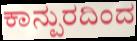
ಕಾನ್ಪುರದಿಂದ